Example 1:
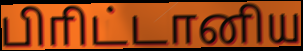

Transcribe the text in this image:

பிரிட்டானிய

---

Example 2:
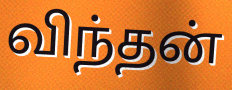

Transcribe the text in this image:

விந்தன்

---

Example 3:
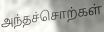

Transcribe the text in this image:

அந்தச்சொற்கள்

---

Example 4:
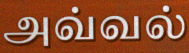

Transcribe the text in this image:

அவ்வல்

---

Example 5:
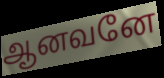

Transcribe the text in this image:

ஆனவனே